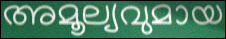
അമൂല്യവുമായ